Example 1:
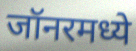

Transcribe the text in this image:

जॉनरमध्ये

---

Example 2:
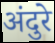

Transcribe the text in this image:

अंदुरे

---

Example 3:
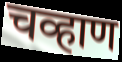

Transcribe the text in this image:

चव्हाण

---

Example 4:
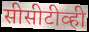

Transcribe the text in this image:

सीसीटीव्ही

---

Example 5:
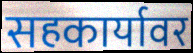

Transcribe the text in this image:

सहकार्यावर